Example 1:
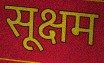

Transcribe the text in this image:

सूक्षम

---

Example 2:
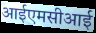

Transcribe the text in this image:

आईएमसीआई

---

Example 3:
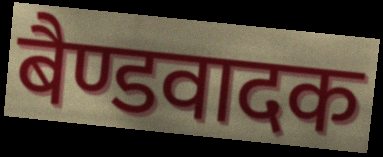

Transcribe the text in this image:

बैण्डवादक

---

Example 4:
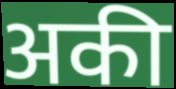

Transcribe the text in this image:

अकी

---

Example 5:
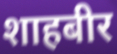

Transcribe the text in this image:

शाहबीर